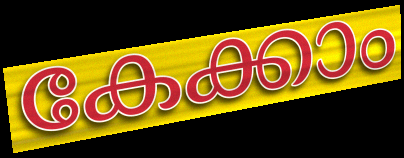
കേക്കാം